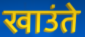
खाउंते